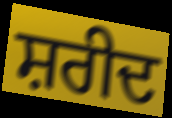
ਸ਼ਰੀਦ